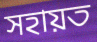
সহায়ত